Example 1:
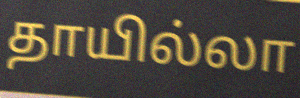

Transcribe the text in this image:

தாயில்லா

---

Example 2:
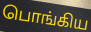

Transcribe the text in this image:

பொங்கிய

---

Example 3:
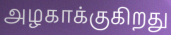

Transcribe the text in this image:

அழகாக்குகிறது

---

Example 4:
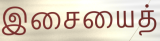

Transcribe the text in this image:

இசையைத்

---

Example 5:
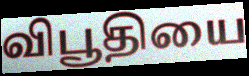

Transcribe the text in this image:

விபூதியை